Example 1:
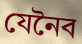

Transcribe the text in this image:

যেনৈব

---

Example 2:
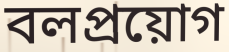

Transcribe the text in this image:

বলপ্রয়োগ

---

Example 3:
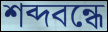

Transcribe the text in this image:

শব্দবন্ধে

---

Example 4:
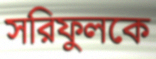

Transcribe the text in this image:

সরিফুলকে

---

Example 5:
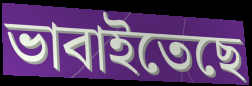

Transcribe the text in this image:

ভাবাইতেছে